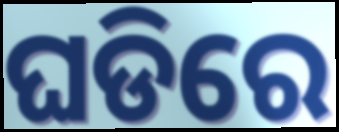
ଘଡିରେ